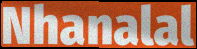
Nhanalal